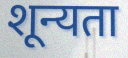
शून्‍यता